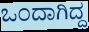
ಒಂದಾಗಿದ್ದ